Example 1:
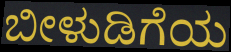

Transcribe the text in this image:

ಬೀಳುಡಿಗೆಯ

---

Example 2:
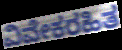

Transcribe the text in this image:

ವಿವೇಕರಹಿತ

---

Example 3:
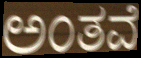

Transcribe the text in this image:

ಅಂತವೆ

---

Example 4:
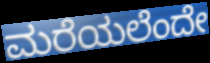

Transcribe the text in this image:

ಮರೆಯಲೆಂದೇ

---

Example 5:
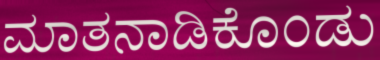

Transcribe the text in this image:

ಮಾತನಾಡಿಕೊಂಡು